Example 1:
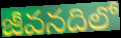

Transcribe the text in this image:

జీవనదిలో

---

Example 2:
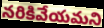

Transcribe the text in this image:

నరికివేయమని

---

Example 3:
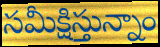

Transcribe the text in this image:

సమీక్షిస్తున్నాం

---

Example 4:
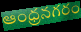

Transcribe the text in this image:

ఆంధ్రనగరం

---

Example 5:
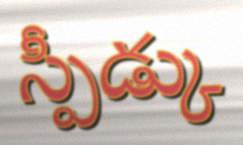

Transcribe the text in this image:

స్పీడ్కు